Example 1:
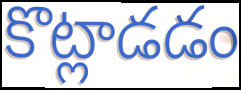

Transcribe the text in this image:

కొట్లాడడం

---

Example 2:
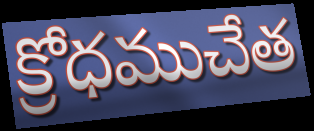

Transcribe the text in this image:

క్రోధముచేత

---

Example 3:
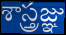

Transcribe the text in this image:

శాస్త్రజ్ఞు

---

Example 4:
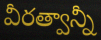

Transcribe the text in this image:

వీరత్వాన్నీ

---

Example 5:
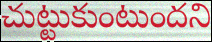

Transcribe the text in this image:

చుట్టుకుంటుందని